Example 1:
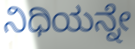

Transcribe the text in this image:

ನಿಧಿಯನ್ನೇ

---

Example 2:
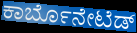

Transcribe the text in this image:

ಕಾರ್ಬೊನೇಟೆಡ್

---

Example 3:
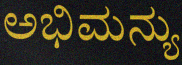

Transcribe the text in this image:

ಅಭಿಮನ್ಯು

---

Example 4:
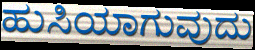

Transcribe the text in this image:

ಹುಸಿಯಾಗುವುದು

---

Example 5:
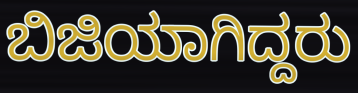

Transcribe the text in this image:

ಬಿಜಿಯಾಗಿದ್ದರು